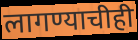
लागण्याचीही